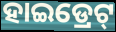
ହାଇଡ୍ରେଟ୍